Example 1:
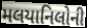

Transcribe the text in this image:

મલયાનિલોની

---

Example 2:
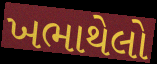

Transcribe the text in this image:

ખભાથેલો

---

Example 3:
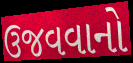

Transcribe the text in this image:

ઉજવવાનો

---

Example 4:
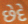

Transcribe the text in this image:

છેદે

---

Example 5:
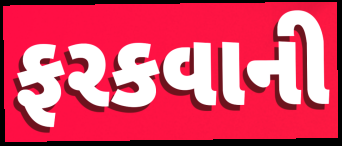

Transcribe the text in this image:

ફરકવાની